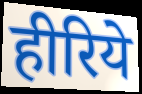
हीरिये